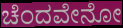
ಚೆಂದವೇನೋ